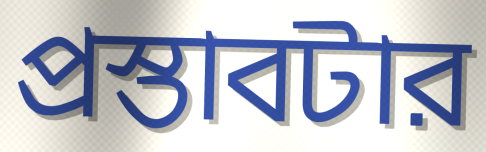
প্রস্তাবটার